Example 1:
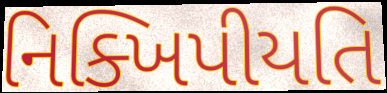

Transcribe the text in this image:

નિક્ખિપીયતિ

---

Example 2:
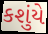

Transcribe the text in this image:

કશુંયે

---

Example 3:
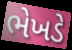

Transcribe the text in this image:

ભેખડે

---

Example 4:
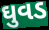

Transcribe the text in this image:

ઘુવડ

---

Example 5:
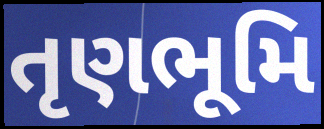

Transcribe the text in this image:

તૃણભૂમિ